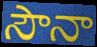
సౌనా